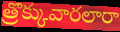
త్రొక్కువారలారా